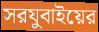
সরযুবাইয়ের